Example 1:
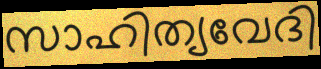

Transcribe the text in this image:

സാഹിത്യവേദി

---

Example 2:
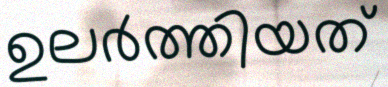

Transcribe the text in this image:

ഉലർത്തിയത്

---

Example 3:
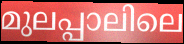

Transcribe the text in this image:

മുലപ്പാലിലെ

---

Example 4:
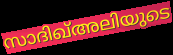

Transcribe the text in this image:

സാദിഖ്അലിയുടെ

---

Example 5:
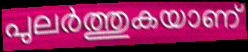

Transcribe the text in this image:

പുലർത്തുകയാണ്